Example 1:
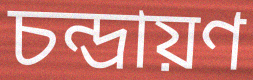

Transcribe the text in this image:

চন্দ্রায়ণ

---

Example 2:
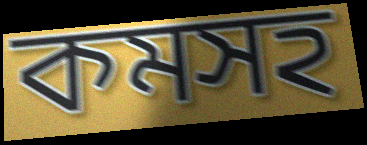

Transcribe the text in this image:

কমসহ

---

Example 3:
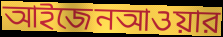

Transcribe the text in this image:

আইজেনআওয়ার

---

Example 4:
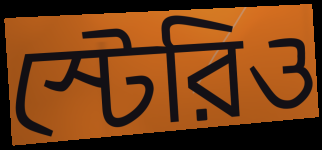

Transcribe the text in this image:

স্টেরিও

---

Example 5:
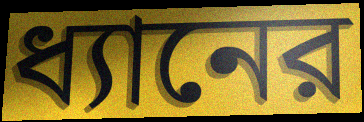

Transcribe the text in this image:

ধ্যানের